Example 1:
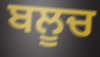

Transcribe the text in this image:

ਬਲੂਚ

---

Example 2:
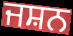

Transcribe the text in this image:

ਜਸ਼ਨ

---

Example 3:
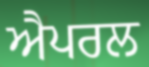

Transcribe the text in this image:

ਐਪਰਲ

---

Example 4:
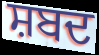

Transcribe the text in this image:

ਸ਼ਬਦ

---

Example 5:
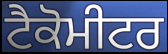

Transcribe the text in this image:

ਟੈਕੋਮੀਟਰ